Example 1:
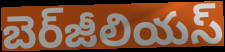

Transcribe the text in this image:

బెర్‌జీలియస్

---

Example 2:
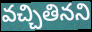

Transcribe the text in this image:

వచ్చితినని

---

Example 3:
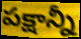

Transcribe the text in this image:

పక్షాన్నీ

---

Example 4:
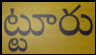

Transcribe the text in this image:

ట్టూరు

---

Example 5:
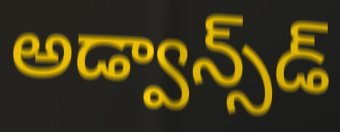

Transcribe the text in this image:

అడ్వాన్స్‌డ్